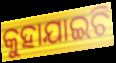
କୁହାଯାଇଚି